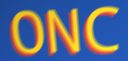
ONC